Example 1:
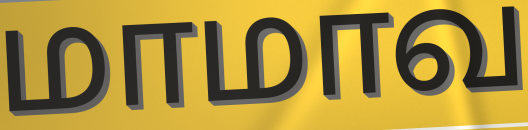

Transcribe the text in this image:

மாமாவ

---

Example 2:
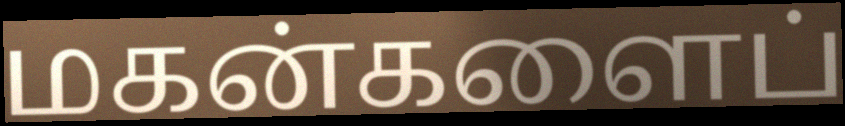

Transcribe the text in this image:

மகன்களைப்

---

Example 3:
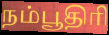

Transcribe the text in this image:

நம்பூதிரி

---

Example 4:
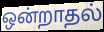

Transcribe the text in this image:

ஒன்றாதல்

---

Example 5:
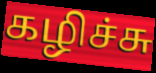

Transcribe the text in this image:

கழிச்சு